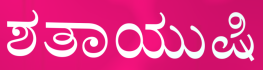
ಶತಾಯುಷಿ